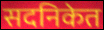
सदनिकेत